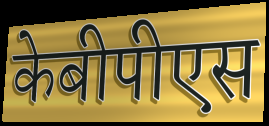
केबीपीएस